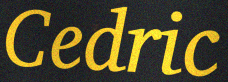
Cedric